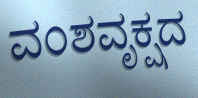
ವಂಶವೃಕ್ಷದ